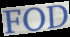
FOD